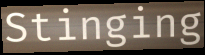
Stinging